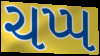
ચપ્પ